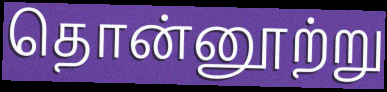
தொன்னூற்று